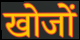
खोजों